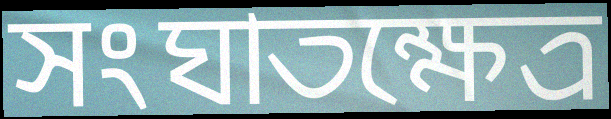
সংঘাতক্ষেত্র